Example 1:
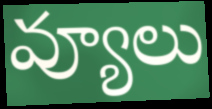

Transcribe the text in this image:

వ్యూలు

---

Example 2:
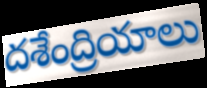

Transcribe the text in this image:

దశేంద్రియాలు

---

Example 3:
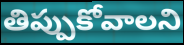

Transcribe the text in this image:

తిప్పుకోవాలని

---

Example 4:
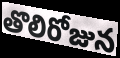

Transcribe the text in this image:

తొలిరోజున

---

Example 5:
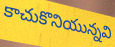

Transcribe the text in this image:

కాచుకొనియున్నవి